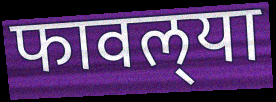
फावल्या